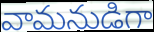
వామనుడిగా